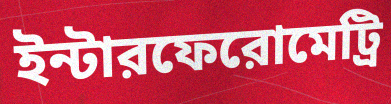
ইন্টারফেরোমেট্রি